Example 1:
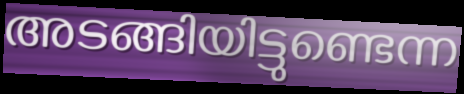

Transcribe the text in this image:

അടങ്ങിയിട്ടുണ്ടെന്ന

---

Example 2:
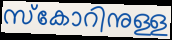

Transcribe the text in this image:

സ്കോറിനുള്ള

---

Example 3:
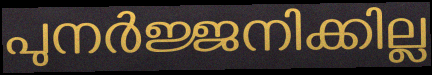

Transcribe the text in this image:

പുനർജ്ജനിക്കില്ല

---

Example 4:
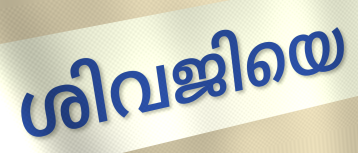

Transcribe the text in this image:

ശിവജിയെ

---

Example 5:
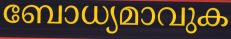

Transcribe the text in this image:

ബോധ്യമാവുക